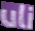
uli